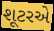
શૂટરએ